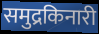
समुद्रकिनारी